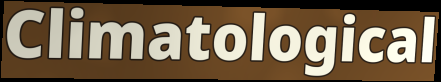
Climatological